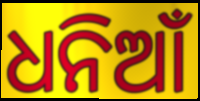
ଧନିଆଁ